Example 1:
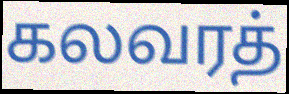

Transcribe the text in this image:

கலவரத்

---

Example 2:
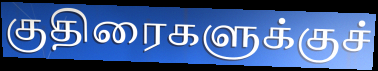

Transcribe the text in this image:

குதிரைகளுக்குச்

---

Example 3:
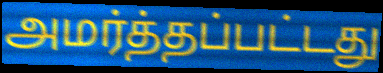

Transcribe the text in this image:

அமர்த்தப்பட்டது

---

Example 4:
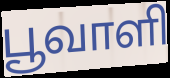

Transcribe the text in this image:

பூவாளி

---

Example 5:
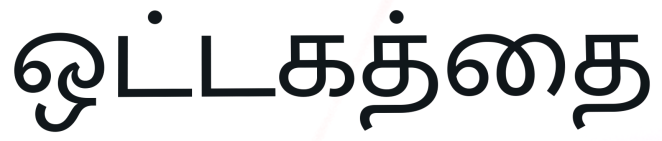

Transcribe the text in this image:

ஒட்டகத்தை